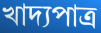
খাদ্যপাত্র